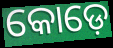
କୋଡ଼େ